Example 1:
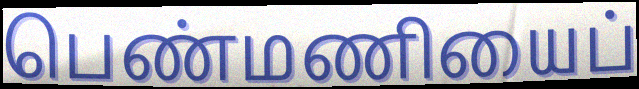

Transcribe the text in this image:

பெண்மணியைப்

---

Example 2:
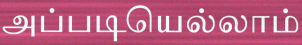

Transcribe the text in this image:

அப்படியெல்லாம்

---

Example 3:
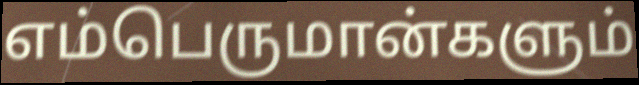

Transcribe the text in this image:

எம்பெருமான்களும்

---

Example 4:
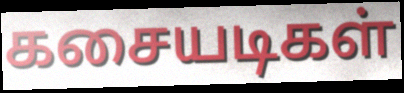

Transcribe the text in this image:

கசையடிகள்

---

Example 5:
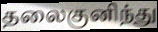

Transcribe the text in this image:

தலைகுனிந்து